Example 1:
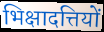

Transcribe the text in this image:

भिक्षादत्तियों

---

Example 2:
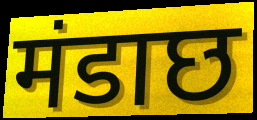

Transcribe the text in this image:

मंडाछ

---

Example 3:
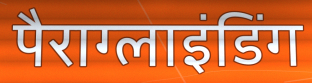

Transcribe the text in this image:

पैराग्लाइंडिंग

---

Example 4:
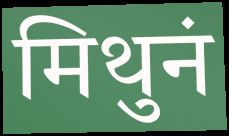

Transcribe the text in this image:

मिथुनं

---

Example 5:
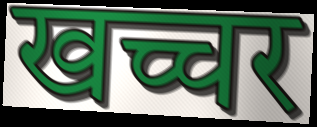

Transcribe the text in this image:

खच्‍चर